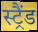
स्ट्रैंड